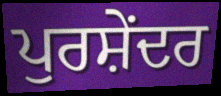
ਪੁਰਸ਼ੇਂਦਰ